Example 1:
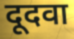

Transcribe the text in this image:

दूदवा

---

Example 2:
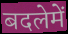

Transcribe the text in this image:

बदलेमें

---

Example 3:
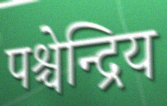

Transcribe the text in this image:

पश्चेन्द्रिय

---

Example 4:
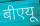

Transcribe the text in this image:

बीएयू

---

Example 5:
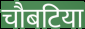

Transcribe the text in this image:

चौबटिया